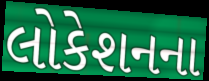
લોકેશનના